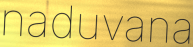
naduvana